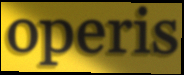
operis